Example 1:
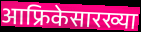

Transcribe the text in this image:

आफ्रिकेसारख्या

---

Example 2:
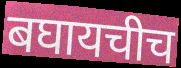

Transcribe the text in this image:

बघायचीच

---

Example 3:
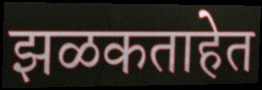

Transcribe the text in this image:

झळकताहेत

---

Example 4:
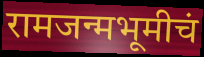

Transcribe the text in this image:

रामजन्मभूमीचं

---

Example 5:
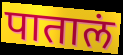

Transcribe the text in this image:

पातालं